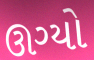
ઊગ્યો